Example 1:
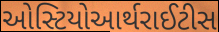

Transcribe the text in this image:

ઓસ્ટિયોઆર્થરાઈટીસ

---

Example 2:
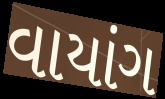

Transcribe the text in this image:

વાયાંગ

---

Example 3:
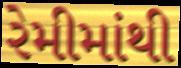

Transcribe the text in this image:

રેમીમાંથી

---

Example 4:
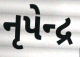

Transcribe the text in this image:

નૃપેન્દ્ર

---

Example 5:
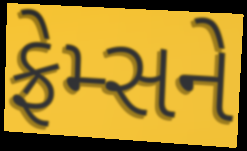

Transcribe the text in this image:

ફ્રેમ્સને